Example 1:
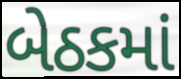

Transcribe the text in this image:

બેઠકમાં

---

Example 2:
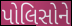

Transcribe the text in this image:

પોલિસોને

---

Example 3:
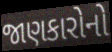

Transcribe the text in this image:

જાણકારોનો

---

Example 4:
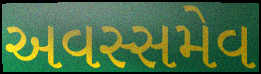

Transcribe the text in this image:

અવસ્સમેવ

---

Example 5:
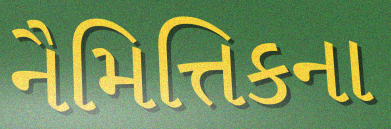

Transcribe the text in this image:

નૈમિત્તિકના